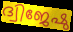
ദ്വിജേഷു